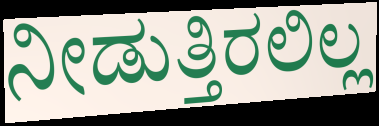
ನೀಡುತ್ತಿರಲಿಲ್ಲ